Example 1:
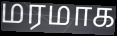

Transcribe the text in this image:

மரமாக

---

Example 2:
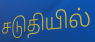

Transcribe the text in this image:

சடுதியில்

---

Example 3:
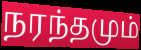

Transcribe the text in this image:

நரந்தமும்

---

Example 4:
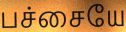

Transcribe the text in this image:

பச்சையே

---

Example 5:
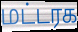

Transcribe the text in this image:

மட்டரக